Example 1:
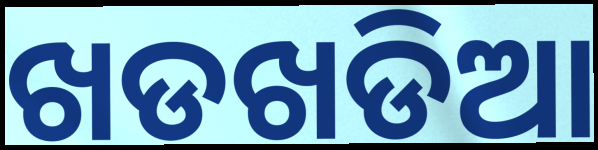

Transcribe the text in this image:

ଖଡଖଡିଆ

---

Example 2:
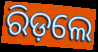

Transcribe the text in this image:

ରିଡ଼ଲେ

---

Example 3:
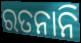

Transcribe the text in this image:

ରତନାନି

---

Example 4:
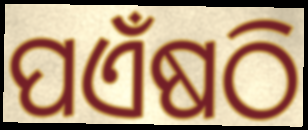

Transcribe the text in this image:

ପଏଁଷଠି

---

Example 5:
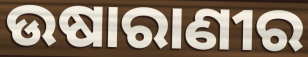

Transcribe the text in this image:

ଉଷାରାଣୀର